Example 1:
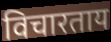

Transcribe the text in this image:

विचारताय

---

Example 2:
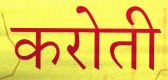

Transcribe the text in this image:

करोती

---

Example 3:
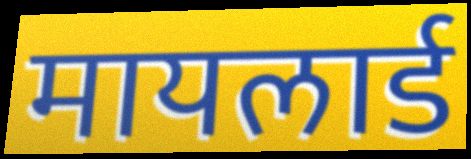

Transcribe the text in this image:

मायलार्ड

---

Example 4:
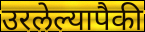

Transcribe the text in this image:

उरलेल्यापैकी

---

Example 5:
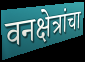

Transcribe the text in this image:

वनक्षेत्रांचा